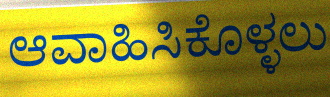
ಆವಾಹಿಸಿಕೊಳ್ಳಲು